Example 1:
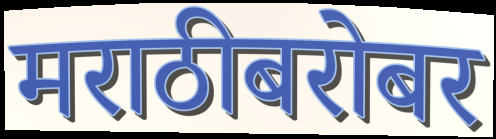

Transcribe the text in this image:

मराठीबरोबर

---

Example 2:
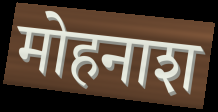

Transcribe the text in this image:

मोहनाश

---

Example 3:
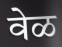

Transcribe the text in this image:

वेळ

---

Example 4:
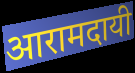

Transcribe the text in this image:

आरामदायी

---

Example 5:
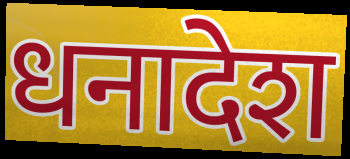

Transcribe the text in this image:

धनादेश